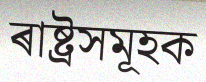
ৰাষ্ট্ৰসমূহক